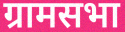
ग्रामसभा